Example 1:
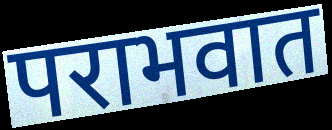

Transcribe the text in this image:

पराभवात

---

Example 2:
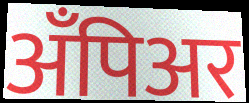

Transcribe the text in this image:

अँपिअर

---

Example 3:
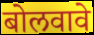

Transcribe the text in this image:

बोलवावे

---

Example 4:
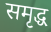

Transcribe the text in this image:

समृद्ध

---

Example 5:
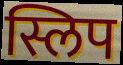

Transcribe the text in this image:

स्लिप